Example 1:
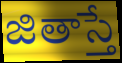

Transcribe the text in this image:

జితాస్తే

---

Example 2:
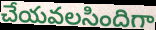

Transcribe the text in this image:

చేయవలసిందిగా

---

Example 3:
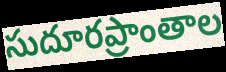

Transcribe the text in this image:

సుదూరప్రాంతాల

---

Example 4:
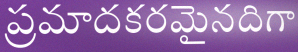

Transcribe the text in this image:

ప్రమాదకరమైనదిగా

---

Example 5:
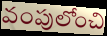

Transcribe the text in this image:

వంపులోంచి